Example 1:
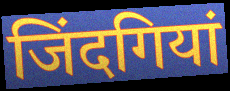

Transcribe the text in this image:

जिंदगियां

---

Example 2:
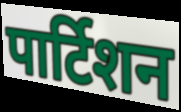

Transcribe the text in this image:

पार्टिशन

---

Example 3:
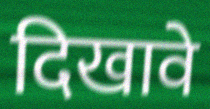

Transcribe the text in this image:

दिखावे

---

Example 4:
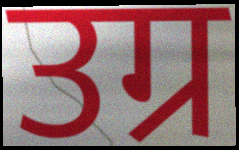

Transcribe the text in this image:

उग्र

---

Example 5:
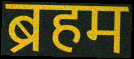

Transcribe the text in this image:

ब्रहम